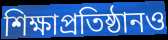
শিক্ষাপ্রতিষ্ঠানও